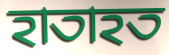
হাতাহত